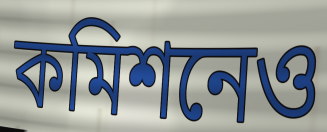
কমিশনেও